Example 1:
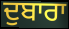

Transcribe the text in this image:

ਦੁਬਾਰਾ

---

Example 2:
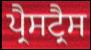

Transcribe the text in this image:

ਪ੍ਰੈਸਟ੍ਰੈਸ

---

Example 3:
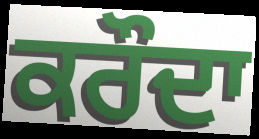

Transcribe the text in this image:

ਕਰੌਦਾ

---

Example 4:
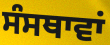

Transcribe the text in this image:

ਸੰਸਥਾਵਾਂ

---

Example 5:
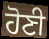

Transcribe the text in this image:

ਹੋਣੀ